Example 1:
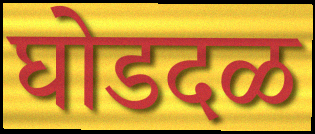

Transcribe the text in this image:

घोडदळ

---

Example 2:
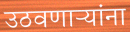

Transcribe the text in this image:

उठवणाऱ्यांना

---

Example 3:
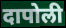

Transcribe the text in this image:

दापोली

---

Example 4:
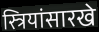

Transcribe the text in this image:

स्त्रियांसारखे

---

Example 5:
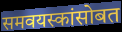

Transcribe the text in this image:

समवयस्कांसोबत